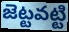
జెట్టవట్టి